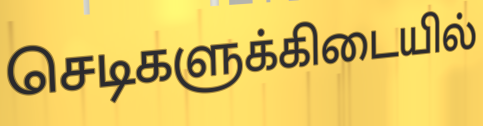
செடிகளுக்கிடையில்